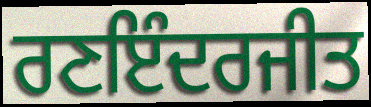
ਰਣਇੰਦਰਜੀਤ